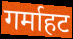
गर्माहट